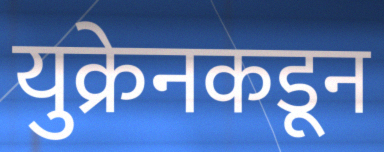
युक्रेनकडून